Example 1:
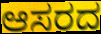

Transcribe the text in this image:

ಆಸರದ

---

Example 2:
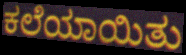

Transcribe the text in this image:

ಕಲೆಯಾಯಿತು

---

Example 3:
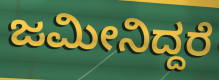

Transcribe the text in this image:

ಜಮೀನಿದ್ದರೆ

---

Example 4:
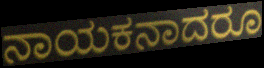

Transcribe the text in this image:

ನಾಯಕನಾದರೂ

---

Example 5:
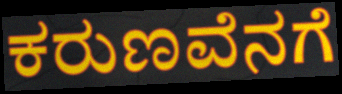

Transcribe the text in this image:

ಕರುಣವೆನಗೆ